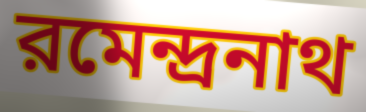
রমেন্দ্রনাথ